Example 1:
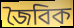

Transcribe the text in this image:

জৈবিক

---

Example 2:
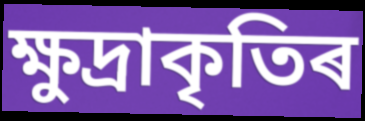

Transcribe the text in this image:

ক্ষুদ্ৰাকৃতিৰ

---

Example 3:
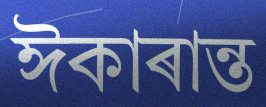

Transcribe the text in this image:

ঈকাৰান্ত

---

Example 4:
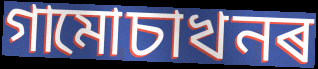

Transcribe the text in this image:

গামোচাখনৰ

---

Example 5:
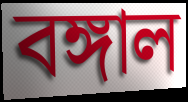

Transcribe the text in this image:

বঙ্গাল